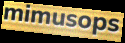
mimusops